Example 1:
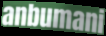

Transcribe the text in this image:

anbumani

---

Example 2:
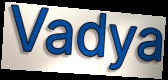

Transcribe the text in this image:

Vadya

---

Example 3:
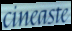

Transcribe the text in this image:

cineaste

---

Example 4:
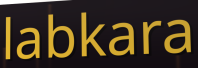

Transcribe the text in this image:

labkara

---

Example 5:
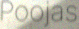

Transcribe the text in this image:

Poojas